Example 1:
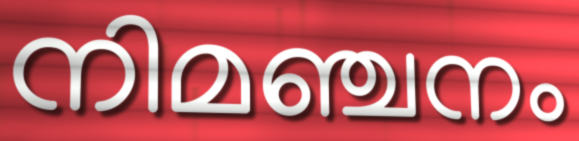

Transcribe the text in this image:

നിമഞ്ചനം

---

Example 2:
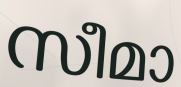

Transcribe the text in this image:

സീമാ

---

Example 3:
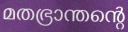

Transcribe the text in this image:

മതഭ്രാന്തന്റെ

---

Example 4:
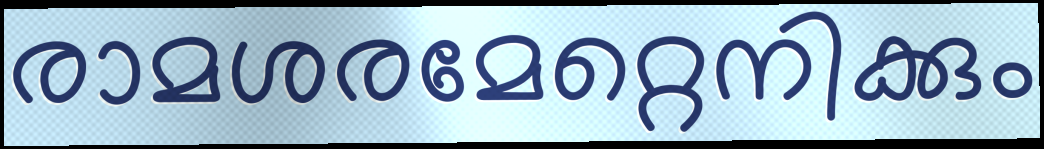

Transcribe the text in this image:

രാമശരമേറ്റെനിക്കും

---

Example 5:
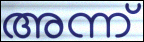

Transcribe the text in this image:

അന്ന്